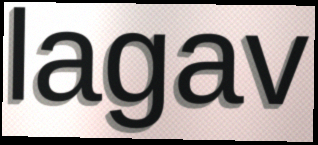
lagav